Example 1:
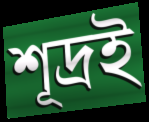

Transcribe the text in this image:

শূদ্ৰই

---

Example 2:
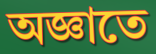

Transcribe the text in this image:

অজ্ঞাতে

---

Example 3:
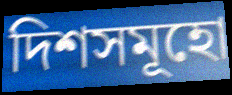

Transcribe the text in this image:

দিশসমূহো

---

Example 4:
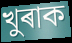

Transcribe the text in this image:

খুৰাক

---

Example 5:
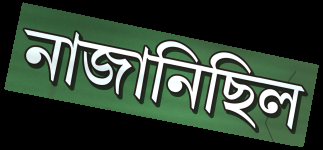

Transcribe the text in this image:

নাজানিছিল